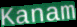
Kanam